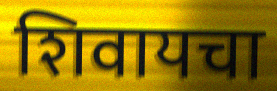
शिवायचा